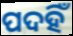
ପଦହିଁ